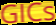
GICs